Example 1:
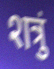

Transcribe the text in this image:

शत्रुं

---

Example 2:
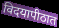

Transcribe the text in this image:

विदयापीठात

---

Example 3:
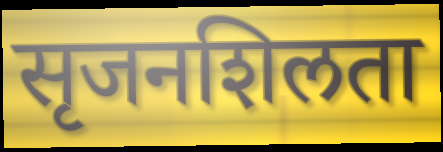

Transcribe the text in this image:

सृजनशिलता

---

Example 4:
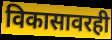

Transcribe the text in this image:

विकासावरही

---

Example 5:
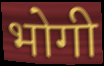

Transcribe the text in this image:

भोगी